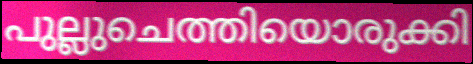
പുല്ലുചെത്തിയൊരുക്കി